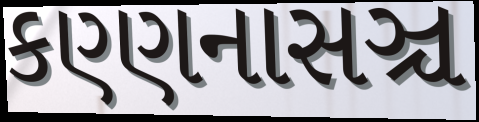
કણ્ણનાસઞ્ચ